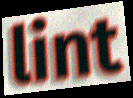
lint